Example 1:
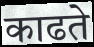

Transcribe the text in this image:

काढते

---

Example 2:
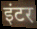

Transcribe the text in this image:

इंटर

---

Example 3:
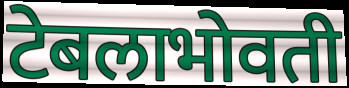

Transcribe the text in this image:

टेबलाभोवती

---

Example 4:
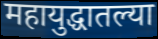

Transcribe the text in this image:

महायुद्धातल्या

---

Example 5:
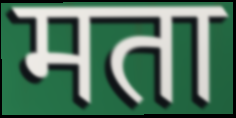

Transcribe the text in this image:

मता